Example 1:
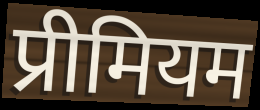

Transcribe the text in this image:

प्रीमियम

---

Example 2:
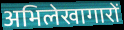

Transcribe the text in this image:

अभिलेखागारों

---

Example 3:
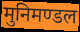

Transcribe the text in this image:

मुनिमण्डल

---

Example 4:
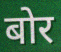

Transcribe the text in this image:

बोर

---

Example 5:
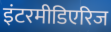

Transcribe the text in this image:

इंटरमीडिएरिज